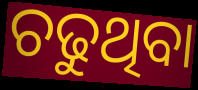
ଚଢୁଥିବା